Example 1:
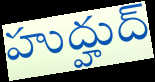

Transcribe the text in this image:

హుద్హుద్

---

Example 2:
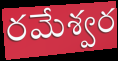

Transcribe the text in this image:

రమేశ్వర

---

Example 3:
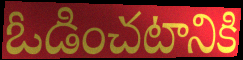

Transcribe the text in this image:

ఓడించటానికి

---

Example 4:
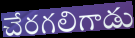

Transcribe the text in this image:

చేరగలిగాడు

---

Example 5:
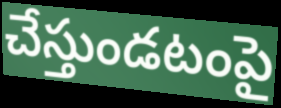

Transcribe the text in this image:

చేస్తుండటంపై